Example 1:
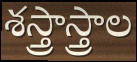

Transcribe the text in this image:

శస్త్రాస్త్రాల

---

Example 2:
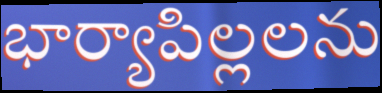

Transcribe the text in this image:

భార్యాపిల్లలను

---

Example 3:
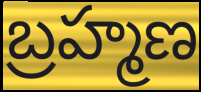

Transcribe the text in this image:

బ్రహ్మణ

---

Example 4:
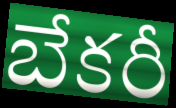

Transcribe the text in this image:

బేకరీ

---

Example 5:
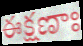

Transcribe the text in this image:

ఈక్షణాః